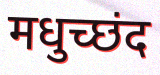
मधुच्छंद